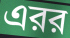
এরর